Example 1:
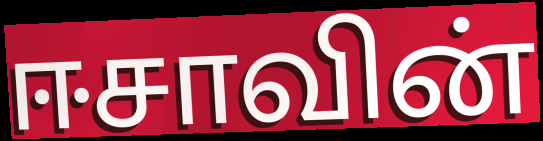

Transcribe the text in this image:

ஈசாவின்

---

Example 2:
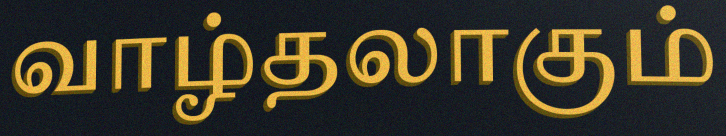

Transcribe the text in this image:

வாழ்தலாகும்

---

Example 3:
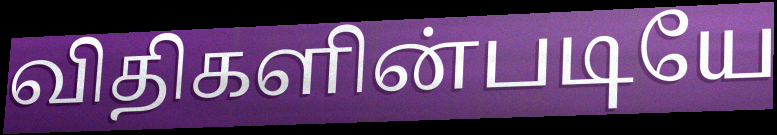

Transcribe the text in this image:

விதிகளின்படியே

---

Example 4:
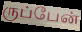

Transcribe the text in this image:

ருப்பேன்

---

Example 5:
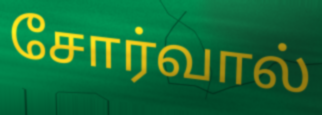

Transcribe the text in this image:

சோர்வால்